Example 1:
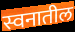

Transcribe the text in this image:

स्वनातील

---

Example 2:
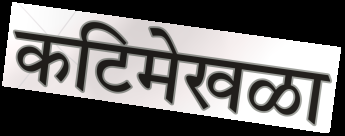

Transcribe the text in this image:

कटिमेखळा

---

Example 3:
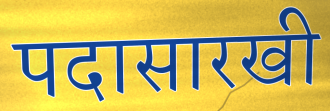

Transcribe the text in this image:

पदासारखी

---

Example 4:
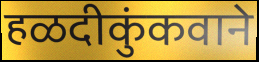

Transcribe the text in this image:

हळदीकुंकवाने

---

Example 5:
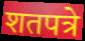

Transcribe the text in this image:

शतपत्रे